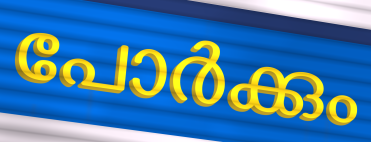
പോർക്കും